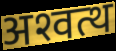
अश्वत्थ